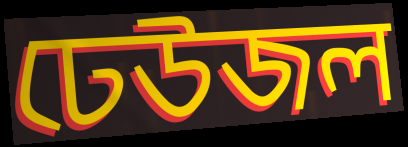
ঢেউজল